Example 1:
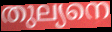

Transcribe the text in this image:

തുല്യനെ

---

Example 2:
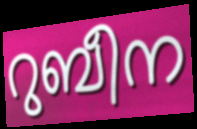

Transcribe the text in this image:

റുബീന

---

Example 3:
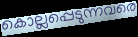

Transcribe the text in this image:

കൊല്ലപ്പെടുന്നവരെ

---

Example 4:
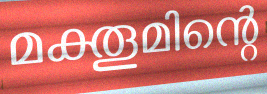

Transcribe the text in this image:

മക്തൂമിന്റെ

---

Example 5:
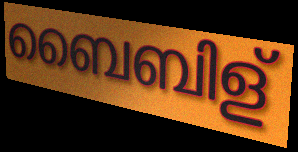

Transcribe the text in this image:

ബൈബിള്